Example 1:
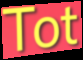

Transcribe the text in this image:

Tot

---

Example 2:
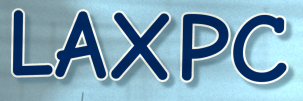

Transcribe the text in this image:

LAXPC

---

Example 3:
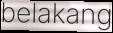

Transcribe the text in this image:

belakang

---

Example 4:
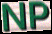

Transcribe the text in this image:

NP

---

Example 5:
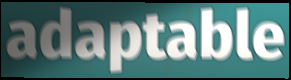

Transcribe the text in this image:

adaptable